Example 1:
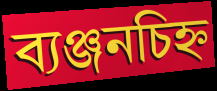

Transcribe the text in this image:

ব্যঞ্জনচিহ্ন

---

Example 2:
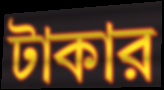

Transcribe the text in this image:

টাকার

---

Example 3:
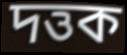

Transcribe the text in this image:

দত্তক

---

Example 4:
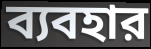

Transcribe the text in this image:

ব্যবহার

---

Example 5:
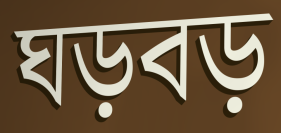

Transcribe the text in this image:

ঘড়বড়